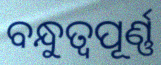
ବନ୍ଧୁତ୍ଵପୂର୍ଣ୍ଣ